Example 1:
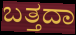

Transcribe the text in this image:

ಬತ್ತದಾ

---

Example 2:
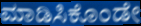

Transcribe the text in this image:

ಮಾಡಿಸಿಕೊಂಡೇ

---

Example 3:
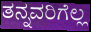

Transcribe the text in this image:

ತನ್ನವರಿಗೆಲ್ಲ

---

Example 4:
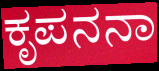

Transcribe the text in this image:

ಕೃಪನನಾ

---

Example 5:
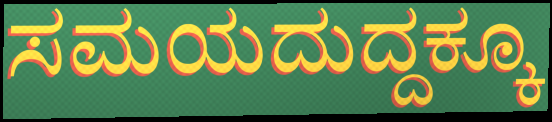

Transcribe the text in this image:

ಸಮಯದುದ್ದಕ್ಕೂ